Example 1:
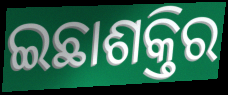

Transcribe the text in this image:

ଇଛାଶକ୍ତିର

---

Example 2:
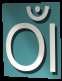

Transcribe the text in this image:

ଠାଁ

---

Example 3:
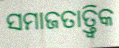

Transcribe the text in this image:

ସମାଜତାତ୍ତ୍ୱିକ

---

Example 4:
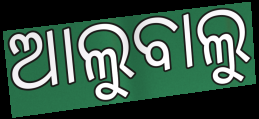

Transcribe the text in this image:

ଆଲୁବାଲୁ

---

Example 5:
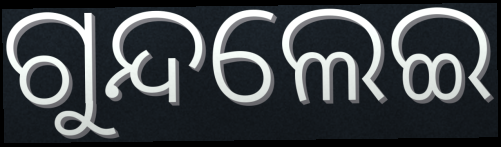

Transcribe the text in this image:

ଗୁନ୍ଦଲେଇ